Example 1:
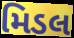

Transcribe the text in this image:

મિડલ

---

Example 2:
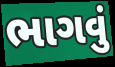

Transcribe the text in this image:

ભાગવું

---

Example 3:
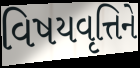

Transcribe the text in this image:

વિષયવૃત્તિને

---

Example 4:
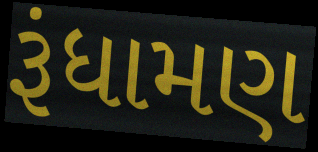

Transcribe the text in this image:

રૂંધામણ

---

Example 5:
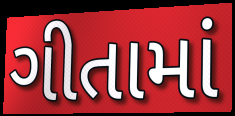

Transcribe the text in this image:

ગીતામાં